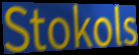
Stokols